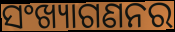
ସଂଖ୍ୟାଗଣନର